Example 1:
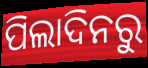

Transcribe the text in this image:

ପିଲାଦିନରୁ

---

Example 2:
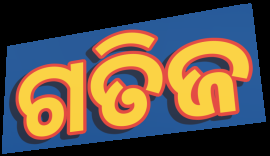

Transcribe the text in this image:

ଗତିଜ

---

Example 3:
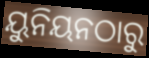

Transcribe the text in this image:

ୟୁନିୟନଠାରୁ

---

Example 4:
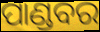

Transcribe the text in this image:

ପାଣ୍ଡବର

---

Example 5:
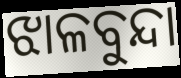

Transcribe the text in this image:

ଝାଳବୁନ୍ଦା